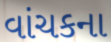
વાંચકના